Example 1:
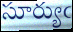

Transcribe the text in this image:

సూర్యుఁ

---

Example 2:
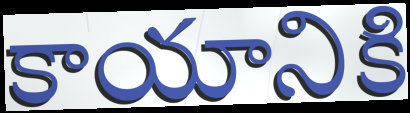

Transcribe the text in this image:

కాయానికి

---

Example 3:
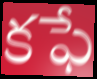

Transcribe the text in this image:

కఫే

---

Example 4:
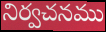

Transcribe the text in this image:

నిర్వచనము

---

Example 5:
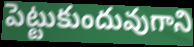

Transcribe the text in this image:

పెట్టుకుందువుగాని